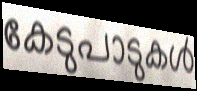
കേടുപാടുകൾ